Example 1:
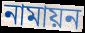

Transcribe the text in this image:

নামায়ন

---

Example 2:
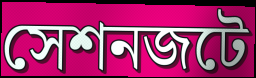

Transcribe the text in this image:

সেশনজটে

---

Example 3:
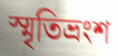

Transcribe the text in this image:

স্মৃতিভ্রংশ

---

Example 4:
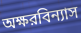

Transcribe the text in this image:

অক্ষরবিন্যাস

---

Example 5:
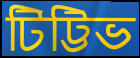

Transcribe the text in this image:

টিট্টিভ